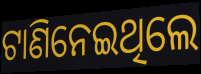
ଟାଣିନେଇଥିଲେ